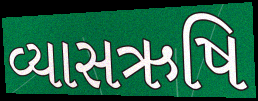
વ્યાસઋષિ